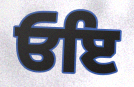
ਓਇ